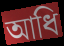
আধি